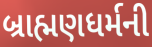
બ્રાહ્મણધર્મની